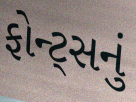
ફોન્ટ્સનું